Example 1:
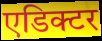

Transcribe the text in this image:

एडिक्टर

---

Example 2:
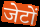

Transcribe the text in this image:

जेटों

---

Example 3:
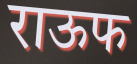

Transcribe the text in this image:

राऊफ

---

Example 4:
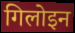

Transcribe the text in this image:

गिलोइन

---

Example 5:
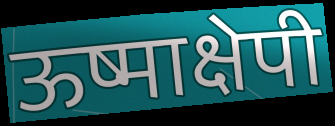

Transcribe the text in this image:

ऊष्माक्षेपी